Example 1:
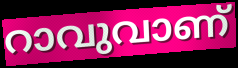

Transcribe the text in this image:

റാവുവാണ്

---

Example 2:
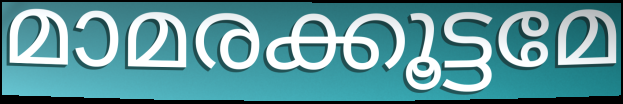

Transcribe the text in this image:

മാമരക്കൂട്ടമേ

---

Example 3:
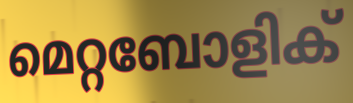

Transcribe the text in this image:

മെറ്റബോളിക്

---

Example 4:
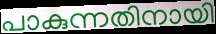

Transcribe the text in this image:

പാകുന്നതിനായി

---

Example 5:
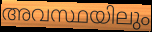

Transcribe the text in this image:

അവസ്ഥയിലും